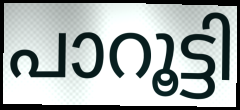
പാറൂട്ടി